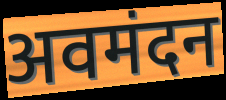
अवमंदन